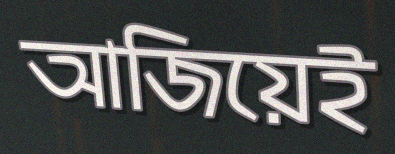
আজিয়েই